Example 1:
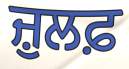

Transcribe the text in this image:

ਜ਼ੁਲਫ਼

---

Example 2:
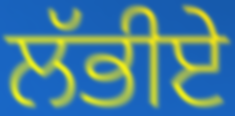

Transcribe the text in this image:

ਲੱਭੀਏ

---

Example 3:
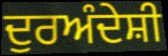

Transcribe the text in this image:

ਦੁਰਅੰਦੇਸ਼ੀ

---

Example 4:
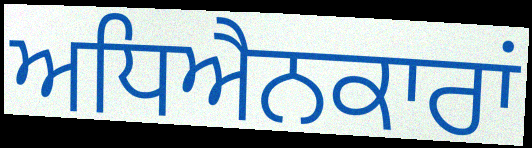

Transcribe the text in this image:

ਅਧਿਐਨਕਾਰਾਂ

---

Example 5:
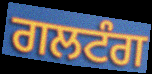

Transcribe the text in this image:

ਗਲਟੰਗ